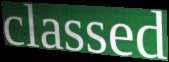
classed